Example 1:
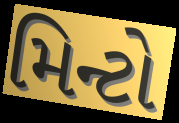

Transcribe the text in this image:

મિન્ટો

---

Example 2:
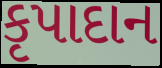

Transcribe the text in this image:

કૃપાદાન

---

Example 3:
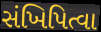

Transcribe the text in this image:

સંખિપિત્વા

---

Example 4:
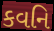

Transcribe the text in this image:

કવનિ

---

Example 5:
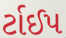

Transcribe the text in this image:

ર્ટાઈપ